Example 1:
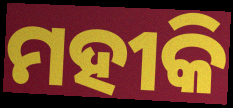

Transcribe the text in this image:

ମହୀକି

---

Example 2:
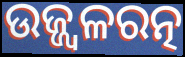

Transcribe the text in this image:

ଉଜ୍ଜ୍ୱଳରତ୍ନ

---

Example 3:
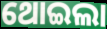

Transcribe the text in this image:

ଥୋଇଲା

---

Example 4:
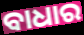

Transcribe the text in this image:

ବାଧାର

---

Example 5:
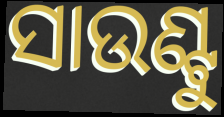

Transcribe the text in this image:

ସାଉଣ୍ଟୁ